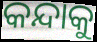
କନ୍ଦାକୁ